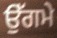
ਉੱਗਮੇ